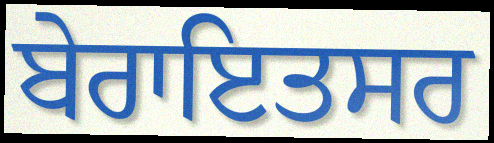
ਬੇਰਾਇਤਸਰ